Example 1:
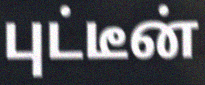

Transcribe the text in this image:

புட்டீன்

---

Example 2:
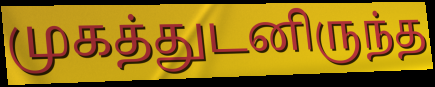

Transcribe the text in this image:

முகத்துடனிருந்த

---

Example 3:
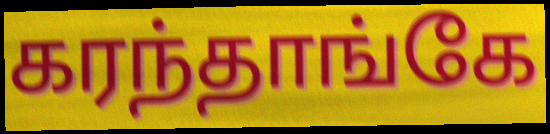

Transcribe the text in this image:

கரந்தாங்கே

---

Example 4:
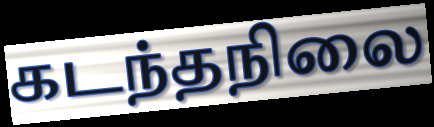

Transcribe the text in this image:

கடந்தநிலை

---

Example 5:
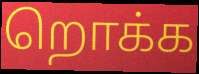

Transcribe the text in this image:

றொக்க